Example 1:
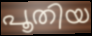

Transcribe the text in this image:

പൂതിയ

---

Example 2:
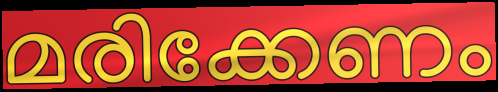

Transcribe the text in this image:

മരിക്കേണം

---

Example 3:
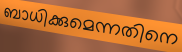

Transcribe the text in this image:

ബാധിക്കുമെന്നതിനെ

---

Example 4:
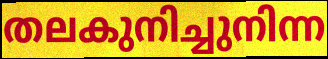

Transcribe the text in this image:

തലകുനിച്ചുനിന്ന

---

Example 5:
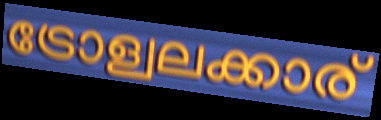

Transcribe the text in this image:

ട്രോള്വലക്കാര്